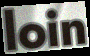
loin